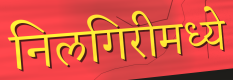
निलगिरीमध्ये